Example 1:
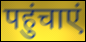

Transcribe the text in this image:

पहुंचाएं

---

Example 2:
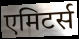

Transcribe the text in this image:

एमिटर्स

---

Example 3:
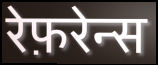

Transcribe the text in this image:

रेफ़रेन्स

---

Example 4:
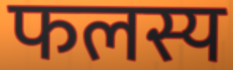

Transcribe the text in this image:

फलस्य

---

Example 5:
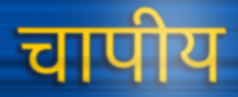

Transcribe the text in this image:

चापीय